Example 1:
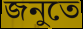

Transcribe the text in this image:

জনুতে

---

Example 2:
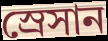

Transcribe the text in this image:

স্রেসান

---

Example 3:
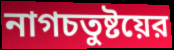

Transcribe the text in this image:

নাগচতুষ্টয়ের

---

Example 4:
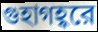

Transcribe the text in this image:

গুহাগহ্বরে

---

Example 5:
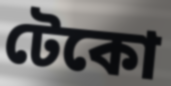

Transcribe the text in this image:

টেকো